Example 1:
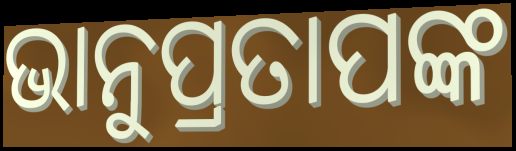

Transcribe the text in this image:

ଭାନୁପ୍ରତାପଙ୍କ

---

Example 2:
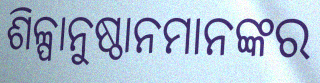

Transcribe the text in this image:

ଶିଳ୍ପାନୁଷ୍ଠାନମାନଙ୍କର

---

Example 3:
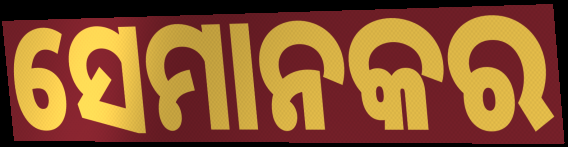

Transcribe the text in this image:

ସେମାନକର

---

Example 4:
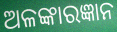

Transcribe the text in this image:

ଅଳଙ୍କାରଜ୍ଞାନ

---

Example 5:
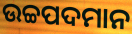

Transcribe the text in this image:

ଉଚ୍ଚପଦମାନ